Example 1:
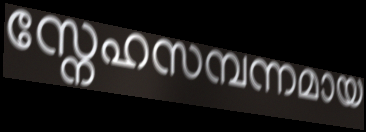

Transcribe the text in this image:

സ്നേഹസമ്പന്നമായ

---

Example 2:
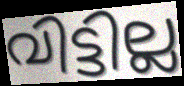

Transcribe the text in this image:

വിട്ടില്ല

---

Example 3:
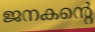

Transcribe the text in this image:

ജനകന്റെ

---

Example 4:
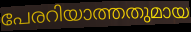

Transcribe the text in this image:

പേരറിയാത്തതുമായ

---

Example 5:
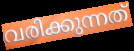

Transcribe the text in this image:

വരിക്കുന്നത്